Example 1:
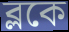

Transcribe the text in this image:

ব্লকে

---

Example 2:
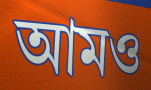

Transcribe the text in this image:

আমও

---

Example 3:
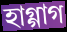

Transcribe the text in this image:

হাগ্গাগ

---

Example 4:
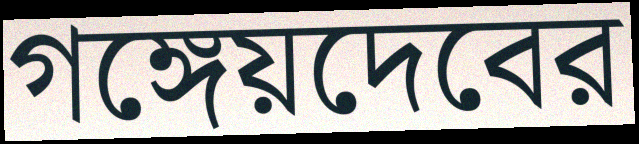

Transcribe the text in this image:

গঙ্গেয়দেবের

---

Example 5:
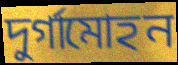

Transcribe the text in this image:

দুর্গামোহন